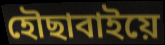
হৌছাবাইয়ে